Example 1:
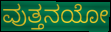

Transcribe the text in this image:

ವುತ್ತನಯೋ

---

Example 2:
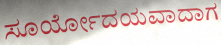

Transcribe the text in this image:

ಸೂರ್ಯೋದಯವಾದಾಗ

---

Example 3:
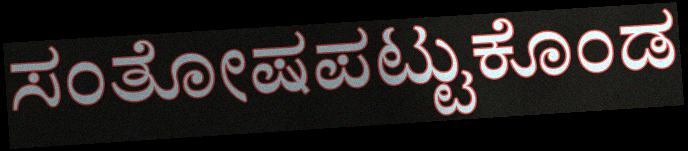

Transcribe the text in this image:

ಸಂತೋಷಪಟ್ಟುಕೊಂಡ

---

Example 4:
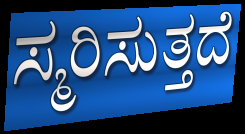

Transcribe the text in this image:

ಸ್ಮರಿಸುತ್ತದೆ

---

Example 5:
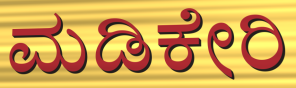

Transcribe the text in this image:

ಮಡಿಕೇರಿ